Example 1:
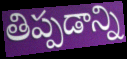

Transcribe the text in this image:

తిప్పడాన్ని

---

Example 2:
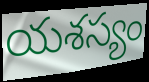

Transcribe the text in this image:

యశస్యం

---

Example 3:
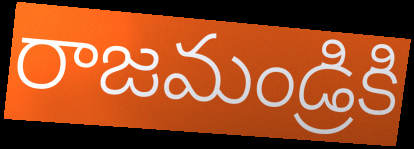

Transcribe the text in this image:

రాజమండ్రికి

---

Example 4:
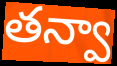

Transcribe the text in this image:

తన్వా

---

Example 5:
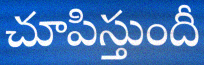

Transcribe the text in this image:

చూపిస్తుందీ